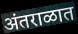
अंतराळात